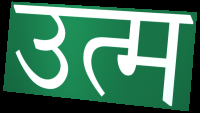
उत्म